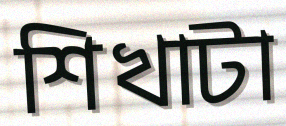
শিখাটা